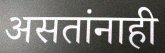
असतांनाही